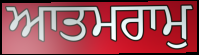
ਆਤਮਰਾਮੁ